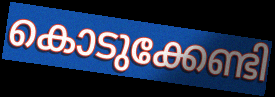
കൊടുക്കേണ്ടി